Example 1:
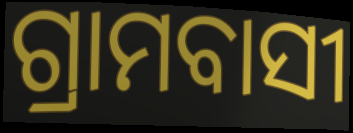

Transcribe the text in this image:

ଗ୍ରାମବାସୀ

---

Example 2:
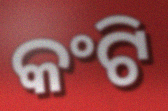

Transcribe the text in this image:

କଂଟି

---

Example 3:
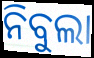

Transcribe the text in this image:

ନିବୁଲା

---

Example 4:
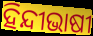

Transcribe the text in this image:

ହିନ୍ଦୀଭାଷୀ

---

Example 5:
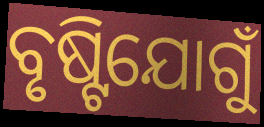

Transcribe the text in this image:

ବୃଷ୍ଟିଯୋଗୁଁ